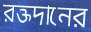
রক্তদানের